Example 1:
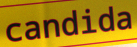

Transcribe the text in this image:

candida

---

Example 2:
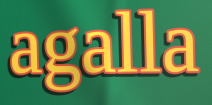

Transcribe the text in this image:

agalla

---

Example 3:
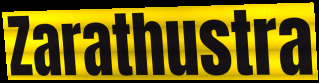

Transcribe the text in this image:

Zarathustra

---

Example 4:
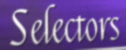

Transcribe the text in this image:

Selectors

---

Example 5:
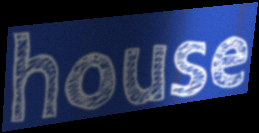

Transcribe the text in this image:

house